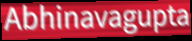
Abhinavagupta